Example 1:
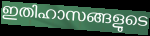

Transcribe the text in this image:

ഇതിഹാസങ്ങളുടെ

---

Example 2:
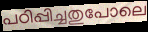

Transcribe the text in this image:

പഠിപ്പിച്ചതുപോലെ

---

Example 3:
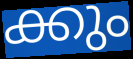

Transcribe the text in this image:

ക്കും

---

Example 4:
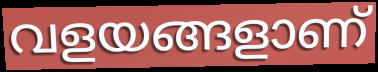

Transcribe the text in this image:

വളയങ്ങളാണ്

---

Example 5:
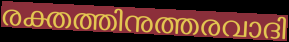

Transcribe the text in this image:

രക്തത്തിനുത്തരവാദി